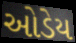
ઓડેય